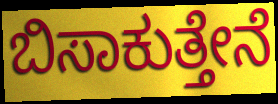
ಬಿಸಾಕುತ್ತೇನೆ